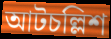
আটচল্লিশ